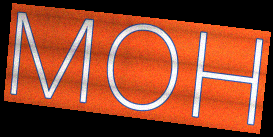
MOH